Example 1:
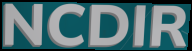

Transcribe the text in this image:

NCDIR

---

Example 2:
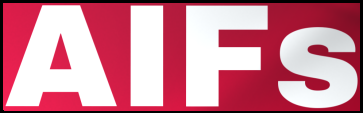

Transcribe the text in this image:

AIFs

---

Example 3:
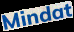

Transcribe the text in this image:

Mindat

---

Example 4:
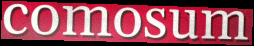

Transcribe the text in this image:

comosum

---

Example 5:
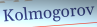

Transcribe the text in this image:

Kolmogorov